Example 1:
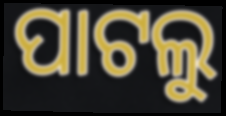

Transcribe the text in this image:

ପାଟଲୁ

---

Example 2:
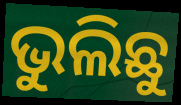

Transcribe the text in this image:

ଭୁଲିଛୁ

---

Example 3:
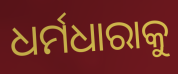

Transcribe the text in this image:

ଧର୍ମଧାରାକୁ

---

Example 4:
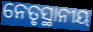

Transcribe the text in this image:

ନେତୃସ୍ଥାନୀୟ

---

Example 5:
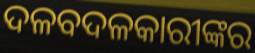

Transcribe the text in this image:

ଦଳବଦଳକାରୀଙ୍କର